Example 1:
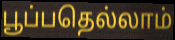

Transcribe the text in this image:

பூப்பதெல்லாம்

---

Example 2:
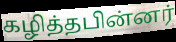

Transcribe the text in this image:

கழித்தபின்னர்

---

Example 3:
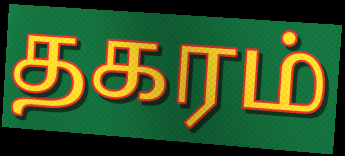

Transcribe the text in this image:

தகரம்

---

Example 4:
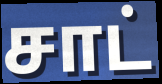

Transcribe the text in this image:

சாட்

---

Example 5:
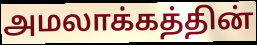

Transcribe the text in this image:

அமலாக்கத்தின்